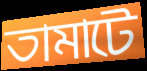
তামাটে